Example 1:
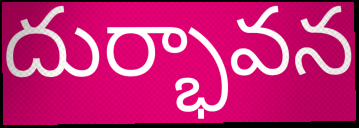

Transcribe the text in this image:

దుర్భావన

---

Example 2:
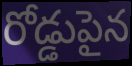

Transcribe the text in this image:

రోడ్డుపైన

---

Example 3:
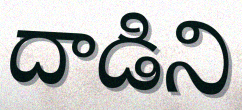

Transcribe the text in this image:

దాడిని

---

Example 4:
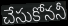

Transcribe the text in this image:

చేసుకోననీ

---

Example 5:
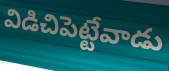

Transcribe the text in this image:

విడిచిపెట్టేవాడు